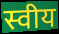
स्वीय